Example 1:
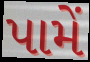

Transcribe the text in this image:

પામેં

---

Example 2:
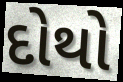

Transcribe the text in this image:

દોથો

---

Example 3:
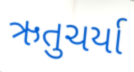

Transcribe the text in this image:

ઋતુચર્યા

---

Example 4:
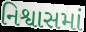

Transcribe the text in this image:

નિશ્વાસમાં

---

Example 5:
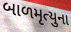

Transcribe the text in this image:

બાળમૃત્યુના